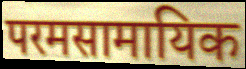
परमसामायिक